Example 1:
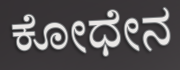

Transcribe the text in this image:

ಕೋಧೇನ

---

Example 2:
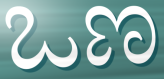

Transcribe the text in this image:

ಒಣ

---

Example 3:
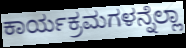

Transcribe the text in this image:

ಕಾರ್ಯಕ್ರಮಗಳನ್ನೆಲ್ಲಾ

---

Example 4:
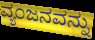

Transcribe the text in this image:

ವ್ಯಂಜನವನ್ನು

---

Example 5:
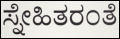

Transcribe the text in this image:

ಸ್ನೇಹಿತರಂತೆ